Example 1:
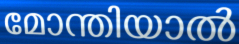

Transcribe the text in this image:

മോന്തിയാൽ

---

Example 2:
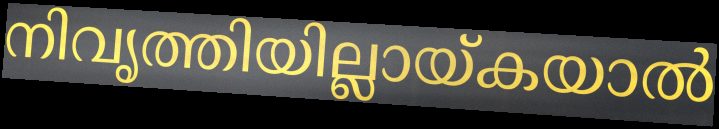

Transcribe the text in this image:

നിവൃത്തിയില്ലായ്കയാൽ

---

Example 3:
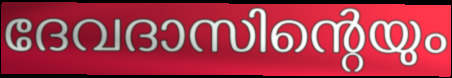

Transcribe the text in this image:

ദേവദാസിന്റെയും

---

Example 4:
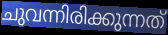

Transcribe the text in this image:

ചുവന്നിരിക്കുന്നത്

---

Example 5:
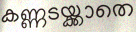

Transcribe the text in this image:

കണ്ണടയ്ക്കാതെ